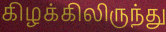
கிழக்கிலிருந்து